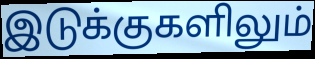
இடுக்குகளிலும்